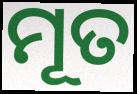
ମୂତ